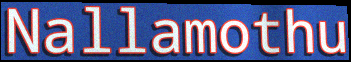
Nallamothu